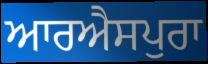
ਆਰਐਸਪੁਰਾ